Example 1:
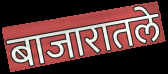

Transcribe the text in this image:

बाजारातले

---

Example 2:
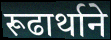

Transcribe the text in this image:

रूढार्थाने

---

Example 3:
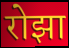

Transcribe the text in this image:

रोझा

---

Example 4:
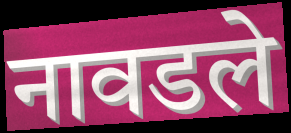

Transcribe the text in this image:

नावडले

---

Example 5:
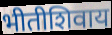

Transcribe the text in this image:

भीतीशिवाय